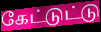
கேட்டுட்டு